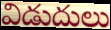
విడుదులు